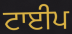
ਟਾਈਪ